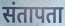
संतापता